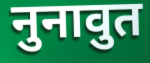
नुनावुत